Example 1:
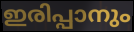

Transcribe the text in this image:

ഇരിപ്പാനും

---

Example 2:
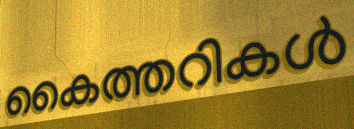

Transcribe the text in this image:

കൈത്തറികൾ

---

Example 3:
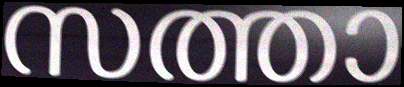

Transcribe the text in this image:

സത്താ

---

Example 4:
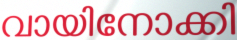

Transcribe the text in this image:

വായിനോക്കി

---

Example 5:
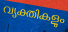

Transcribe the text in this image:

വ്യക്തികളും